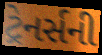
ટ્રેનર્સની